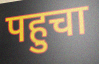
पहुचा